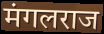
मंगलराज